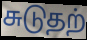
சுடுதற்